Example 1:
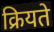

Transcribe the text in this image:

क्रियते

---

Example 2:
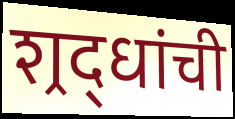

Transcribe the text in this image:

श्रद्धांची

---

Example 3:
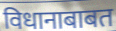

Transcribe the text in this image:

विधानाबाबत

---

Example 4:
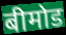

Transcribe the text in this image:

बीमोड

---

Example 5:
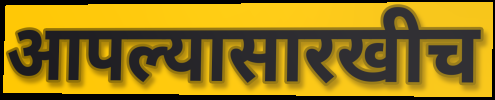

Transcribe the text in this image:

आपल्यासारखीच